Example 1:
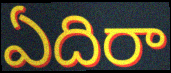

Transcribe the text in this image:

ఏదిరా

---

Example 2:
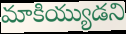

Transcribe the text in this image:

మాకియ్యుడని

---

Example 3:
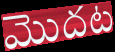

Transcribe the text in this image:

మొదట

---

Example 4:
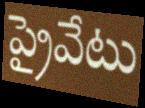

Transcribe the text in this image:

ప్రైవేటు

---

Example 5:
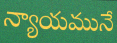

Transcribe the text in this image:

న్యాయమునే